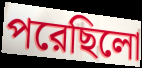
পরেছিলো